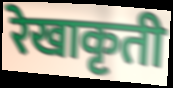
रेखाकृती